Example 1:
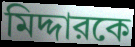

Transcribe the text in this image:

মিদ্দারকে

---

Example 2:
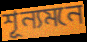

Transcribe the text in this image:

শূন্যমনে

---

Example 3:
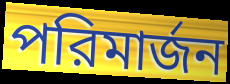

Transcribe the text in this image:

পরিমার্জন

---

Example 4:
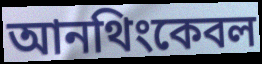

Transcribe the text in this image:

আনথিংকেবল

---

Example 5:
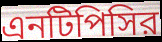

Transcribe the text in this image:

এনটিপিসির